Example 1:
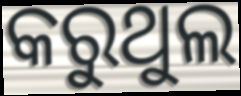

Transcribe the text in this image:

କରୁଥୁଲ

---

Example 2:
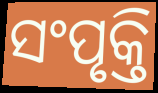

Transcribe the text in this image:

ସଂପୃକ୍ତି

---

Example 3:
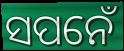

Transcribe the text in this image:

ସପନେଁ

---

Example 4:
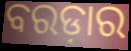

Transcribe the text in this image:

ବରଡ଼ାର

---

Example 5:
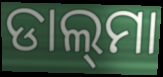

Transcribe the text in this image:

ଡାଲ୍‍ମା